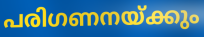
പരിഗണനയ്ക്കും